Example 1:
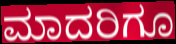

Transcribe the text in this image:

ಮಾದರಿಗೂ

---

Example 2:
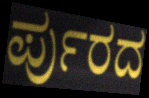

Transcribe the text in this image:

ರ್ಪುರದ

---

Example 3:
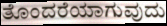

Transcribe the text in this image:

ತೊಂದರೆಯಾಗುವುದು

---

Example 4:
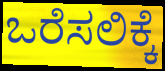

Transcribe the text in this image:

ಒರೆಸಲಿಕ್ಕೆ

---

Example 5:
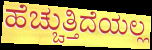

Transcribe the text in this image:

ಹೆಚ್ಚುತ್ತಿದೆಯಲ್ಲ